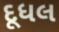
દૂધલ